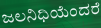
ಜಲನಿಧಿಯೆಂದರೆ